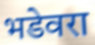
भडेवरा